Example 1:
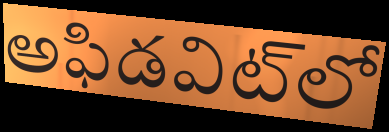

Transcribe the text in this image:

అఫిడవిట్‌లో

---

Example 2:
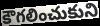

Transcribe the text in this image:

కౌగలించుకుని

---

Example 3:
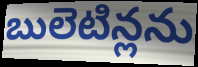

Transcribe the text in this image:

బులెటిన్లను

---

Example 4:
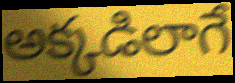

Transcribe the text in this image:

అక్కడిలాగే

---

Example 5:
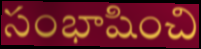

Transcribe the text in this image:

సంభాషించి